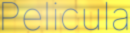
Pelicula